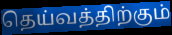
தெய்வத்திற்கும்